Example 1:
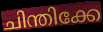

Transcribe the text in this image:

ചിന്തിക്കേ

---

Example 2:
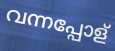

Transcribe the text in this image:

വന്നപ്പോള്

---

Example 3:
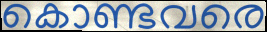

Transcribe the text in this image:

കൊണ്ടവരെ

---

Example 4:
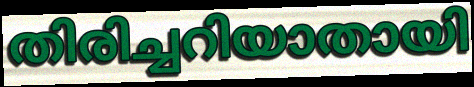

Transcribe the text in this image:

തിരിച്ചറിയാതായി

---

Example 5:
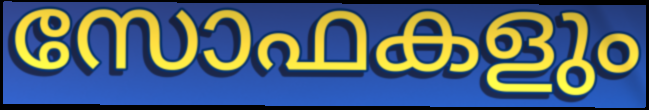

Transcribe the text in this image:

സോഫകളും